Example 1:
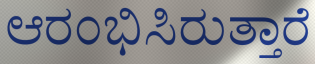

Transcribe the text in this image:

ಆರಂಭಿಸಿರುತ್ತಾರೆ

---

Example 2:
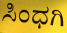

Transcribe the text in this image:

ಸಿಂಧಗಿ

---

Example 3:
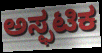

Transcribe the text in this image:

ಅಸ್ಫಟಿಕ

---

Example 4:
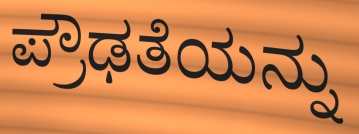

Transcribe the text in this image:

ಪ್ರೌಢತೆಯನ್ನು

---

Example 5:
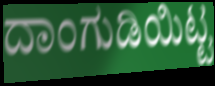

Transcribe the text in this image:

ದಾಂಗುಡಿಯಿಟ್ಟ